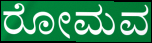
ರೋಮವ